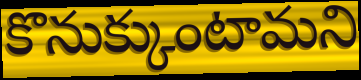
కొనుక్కుంటామని